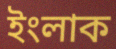
ইংলাক